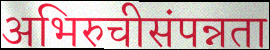
अभिरुचीसंपन्नता